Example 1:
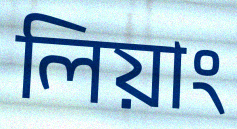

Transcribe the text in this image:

লিয়াং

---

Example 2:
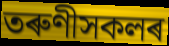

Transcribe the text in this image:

তৰুণীসকলৰ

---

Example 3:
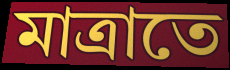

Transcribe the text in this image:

মাত্ৰাতে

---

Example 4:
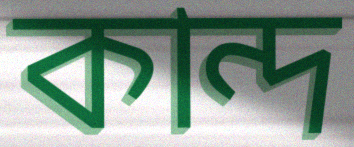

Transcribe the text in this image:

কান্দ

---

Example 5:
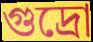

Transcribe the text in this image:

গুদ্ৰো